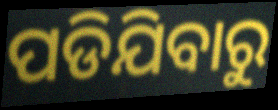
ପଡିଯିବାରୁ